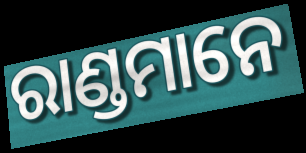
ରାଣ୍ଡମାନେ